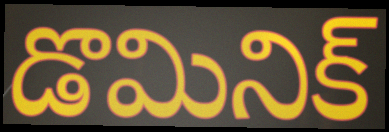
డొమినిక్